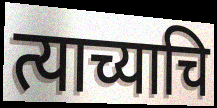
त्याच्याचि